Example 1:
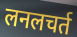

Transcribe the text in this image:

लनलचर्त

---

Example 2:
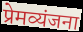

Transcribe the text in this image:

प्रेमव्यंजना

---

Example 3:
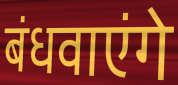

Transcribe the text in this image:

बंधवाएंगे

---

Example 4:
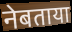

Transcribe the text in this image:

नेबताया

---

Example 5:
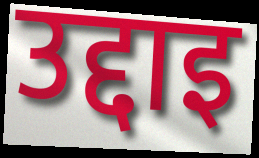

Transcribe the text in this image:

उद्दाइ